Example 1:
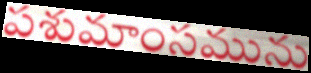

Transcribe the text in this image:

పశుమాంసమును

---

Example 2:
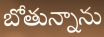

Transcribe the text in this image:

బోతున్నాను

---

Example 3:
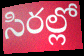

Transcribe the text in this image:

సిరల్లో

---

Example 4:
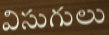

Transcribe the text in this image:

విసుగులు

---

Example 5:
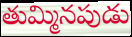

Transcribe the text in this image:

తుమ్మినపుడు